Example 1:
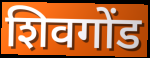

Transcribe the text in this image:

शिवगोंड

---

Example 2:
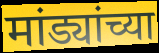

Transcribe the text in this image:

मांड्यांच्या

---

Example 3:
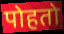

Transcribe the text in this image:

पोहतो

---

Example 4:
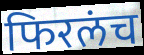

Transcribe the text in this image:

फिरलंच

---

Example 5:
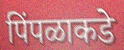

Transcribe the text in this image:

पिंपळाकडे